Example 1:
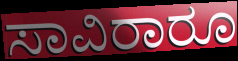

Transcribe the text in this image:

ಸಾವಿರಾರೂ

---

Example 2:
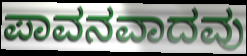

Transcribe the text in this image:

ಪಾವನವಾದವು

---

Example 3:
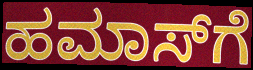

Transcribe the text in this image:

ಹಮಾಸ್‌ಗೆ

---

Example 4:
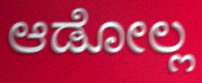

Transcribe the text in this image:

ಆಡೋಲ್ಲ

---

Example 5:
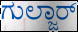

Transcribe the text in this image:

ಗುಲ್ಜಾರ್